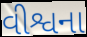
વીશ્વના